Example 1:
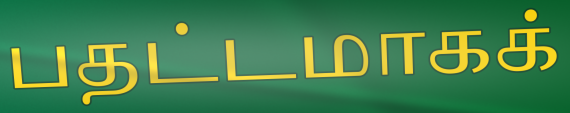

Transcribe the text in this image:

பதட்டமாகக்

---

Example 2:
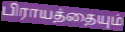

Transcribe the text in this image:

பிராயத்தையும்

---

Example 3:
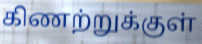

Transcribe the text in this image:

கிணற்றுக்குள்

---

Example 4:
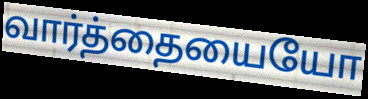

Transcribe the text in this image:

வார்த்தையையோ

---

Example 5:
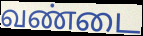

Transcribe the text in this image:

வண்டை